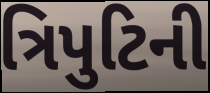
ત્રિપુટિની